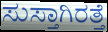
ಸುಸ್ತಾಗಿರತ್ತೆ